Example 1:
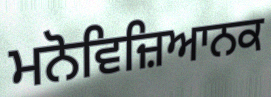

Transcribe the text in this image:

ਮਨੋਵਿਜ਼ਿਆਨਕ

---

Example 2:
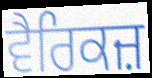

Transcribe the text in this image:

ਵੈਰਿਕਜ਼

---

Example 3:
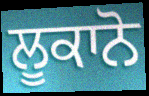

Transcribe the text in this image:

ਲੂਕਾਨੋ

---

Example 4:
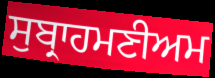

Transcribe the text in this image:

ਸੁਬ੍ਰਾਹਮਣੀਅਮ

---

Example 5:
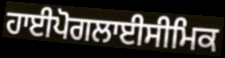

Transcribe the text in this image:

ਹਾਈਪੋਗਲਾਈਸੀਮਿਕ